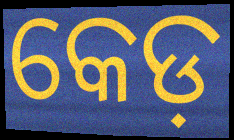
କେଡ଼